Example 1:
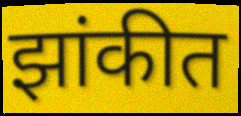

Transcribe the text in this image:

झांकीत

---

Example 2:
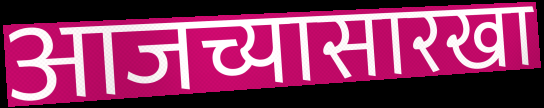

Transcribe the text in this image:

आजच्यासारखा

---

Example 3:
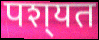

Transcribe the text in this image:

पश्यत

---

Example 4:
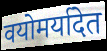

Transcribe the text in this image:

वयोमर्यादेत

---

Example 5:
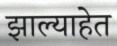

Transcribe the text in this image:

झाल्याहेत